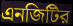
এনজিটির